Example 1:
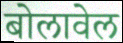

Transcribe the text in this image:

बोलावेल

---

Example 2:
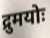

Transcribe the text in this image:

द्रुमयोः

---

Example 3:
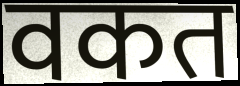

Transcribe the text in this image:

वकत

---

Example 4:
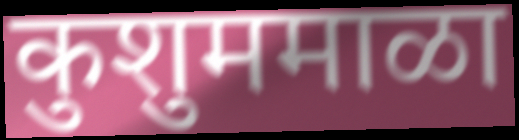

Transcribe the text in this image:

कुशुममाळा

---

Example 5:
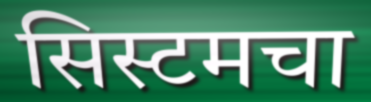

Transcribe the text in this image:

सिस्टमचा